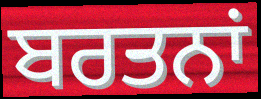
ਬਰਤਨਾਂ